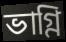
ভাগ্নি